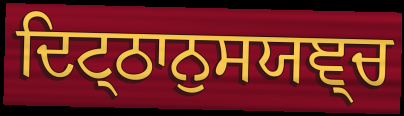
ਦਿਟ੍ਠਾਨੁਸਯਞ੍ਚ